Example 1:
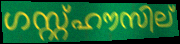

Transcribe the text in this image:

ഗസ്റ്റ്ഹൗസില്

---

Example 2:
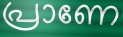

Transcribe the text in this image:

പ്രാണേ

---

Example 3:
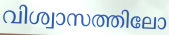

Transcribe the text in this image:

വിശ്വാസത്തിലോ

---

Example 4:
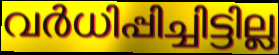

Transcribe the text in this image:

വർധിപ്പിച്ചിട്ടില്ല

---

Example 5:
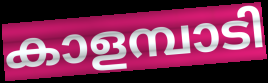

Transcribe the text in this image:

കാളമ്പാടി